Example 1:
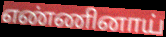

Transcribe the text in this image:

எண்ணினாய்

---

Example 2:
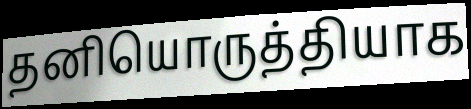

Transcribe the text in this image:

தனியொருத்தியாக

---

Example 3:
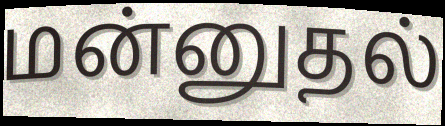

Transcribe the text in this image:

மன்னுதல்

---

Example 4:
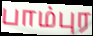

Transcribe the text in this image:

பாம்புர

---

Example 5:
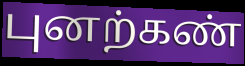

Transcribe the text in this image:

புனற்கண்